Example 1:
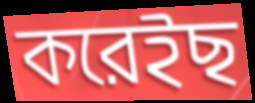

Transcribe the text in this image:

করেইছ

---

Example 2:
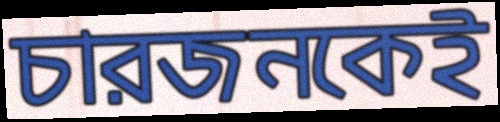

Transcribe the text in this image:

চারজনকেই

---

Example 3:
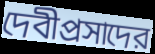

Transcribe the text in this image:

দেবীপ্রসাদের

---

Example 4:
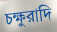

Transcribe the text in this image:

চক্ষুরাদি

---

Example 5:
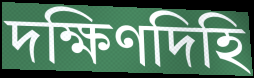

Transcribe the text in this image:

দক্ষিণদিহি